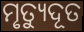
ମୃତ୍ୟୁଦୂତ